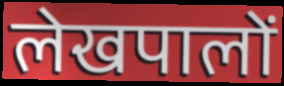
लेखपालों